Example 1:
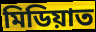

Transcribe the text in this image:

মিডিয়াত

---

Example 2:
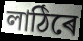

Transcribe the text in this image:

লাঠিৰে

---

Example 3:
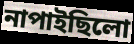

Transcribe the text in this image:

নাপাইছিলো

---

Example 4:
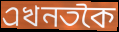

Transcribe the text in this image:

এখনতকৈ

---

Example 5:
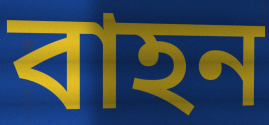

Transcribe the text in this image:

বাহন